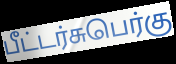
பீட்டர்சுபெர்கு